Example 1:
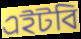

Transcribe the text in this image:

এইটবি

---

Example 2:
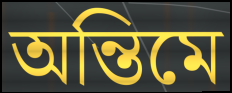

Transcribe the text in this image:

অন্তিমে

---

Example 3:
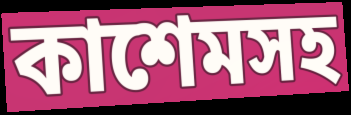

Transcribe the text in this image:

কাশেমসহ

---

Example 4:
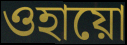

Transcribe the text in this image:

ওহায়ো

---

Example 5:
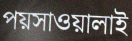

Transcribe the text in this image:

পয়সাওয়ালাই